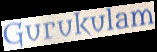
Gurukulam